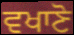
ਵਖਾਣੋ